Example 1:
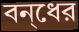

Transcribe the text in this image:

বন্‌ধের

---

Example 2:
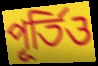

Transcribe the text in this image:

পূর্তিও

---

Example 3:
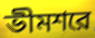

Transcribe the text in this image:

ভীমশরে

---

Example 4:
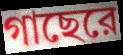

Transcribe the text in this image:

গাছেরে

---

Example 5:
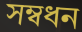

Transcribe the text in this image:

সম্বধন